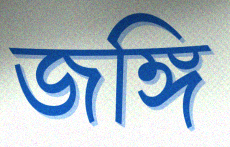
জঙ্গি